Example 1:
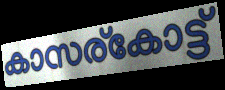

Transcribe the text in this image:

കാസര്കോട്ട്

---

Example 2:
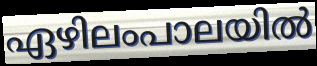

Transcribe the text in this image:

ഏഴിലംപാലയിൽ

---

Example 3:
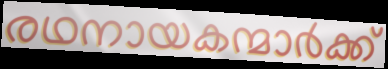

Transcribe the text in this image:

രഥനായകന്മാർക്ക്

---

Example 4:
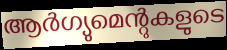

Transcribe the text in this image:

ആർഗ്യുമെന്റുകളുടെ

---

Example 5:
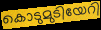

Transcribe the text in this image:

കൊടുമുടിയേറി